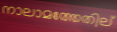
നാലാമത്തേതില്